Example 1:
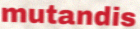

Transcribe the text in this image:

mutandis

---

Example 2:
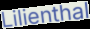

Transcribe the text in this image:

Lilienthal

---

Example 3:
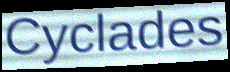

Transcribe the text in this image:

Cyclades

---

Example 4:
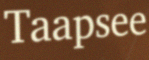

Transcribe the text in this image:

Taapsee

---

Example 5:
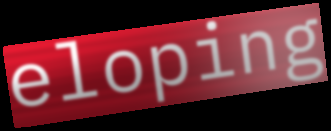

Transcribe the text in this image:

eloping